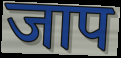
जाप